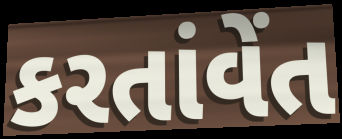
કરતાંવેંત